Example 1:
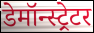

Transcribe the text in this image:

डेमॉन्स्ट्रेटर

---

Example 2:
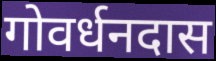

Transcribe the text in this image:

गोवर्धनदास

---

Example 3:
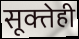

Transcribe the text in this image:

सूक्तेही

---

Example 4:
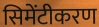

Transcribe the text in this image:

सिमेंटीकरण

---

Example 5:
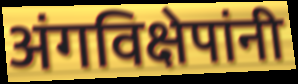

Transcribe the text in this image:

अंगविक्षेपांनी